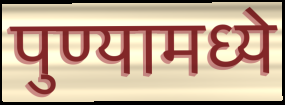
पुण्यामध्ये